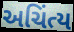
અચિંત્ય